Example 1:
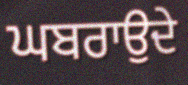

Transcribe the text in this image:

ਘਬਰਾਉਦੇ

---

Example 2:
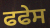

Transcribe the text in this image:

ਫਫੇਸ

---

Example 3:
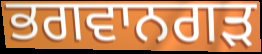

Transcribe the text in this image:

ਭਗਵਾਨਗੜ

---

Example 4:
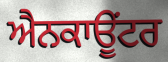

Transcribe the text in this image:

ਐਨਕਾਊਂਟਰ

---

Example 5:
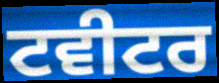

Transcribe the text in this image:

ਟਵੀਟਰ